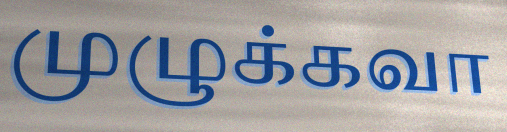
முழுக்கவா